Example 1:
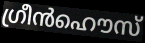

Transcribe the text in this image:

ഗ്രീൻഹൌസ്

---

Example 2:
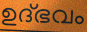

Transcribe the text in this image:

ഉദ്ഭവം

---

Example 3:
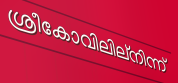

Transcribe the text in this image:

ശ്രീകോവിലില്നിന്ന്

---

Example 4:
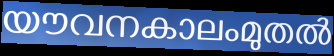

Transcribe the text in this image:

യൗവനകാലംമുതൽ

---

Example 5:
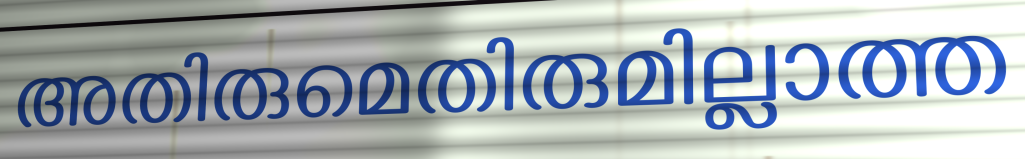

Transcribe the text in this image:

അതിരുമെതിരുമില്ലാത്ത